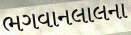
ભગવાનલાલના